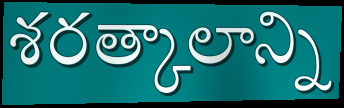
శరత్కాలాన్ని